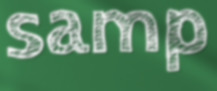
samp